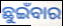
ଛୁଇଁବାର